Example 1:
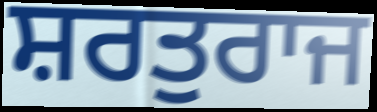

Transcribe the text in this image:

ਸ਼ਰਤੁਰਾਜ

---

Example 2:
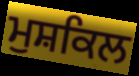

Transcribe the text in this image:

ਮੁਸ਼ਕਿਲ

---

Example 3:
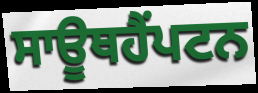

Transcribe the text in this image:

ਸਾਊਥਹੈਂਪਟਨ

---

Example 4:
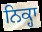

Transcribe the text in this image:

ਨਿਕ੍ਹਾ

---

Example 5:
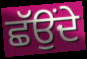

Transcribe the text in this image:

ਛੱਉਂਦੇ